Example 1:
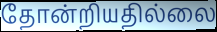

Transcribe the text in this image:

தோன்றியதில்லை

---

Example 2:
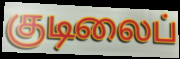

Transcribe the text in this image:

குடிலைப்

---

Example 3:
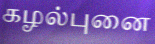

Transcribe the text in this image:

கழல்புனை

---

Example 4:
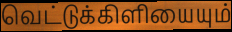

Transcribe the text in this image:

வெட்டுக்கிளியையும்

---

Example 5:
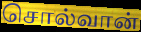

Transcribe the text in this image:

சொல்வான்